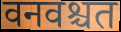
वनवश्चत